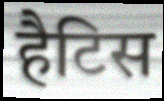
हैटिस